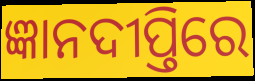
ଜ୍ଞାନଦୀପ୍ତିରେ